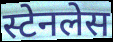
स्टेनलेस